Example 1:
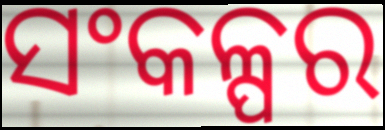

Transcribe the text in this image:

ସଂକଳ୍ପର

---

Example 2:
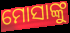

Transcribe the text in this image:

ମୋସାଙ୍କୁ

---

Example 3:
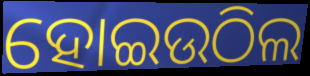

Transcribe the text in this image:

ହୋଇଉଠିଲ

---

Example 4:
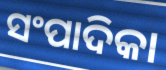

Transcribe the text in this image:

ସଂପାଦିକା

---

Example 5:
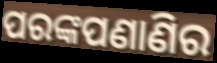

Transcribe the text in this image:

ପରଙ୍କପଣାଣିର